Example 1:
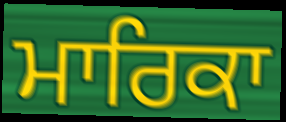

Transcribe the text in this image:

ਮਾਰਿਕਾ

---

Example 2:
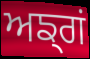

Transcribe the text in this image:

ਅਙ੍ਗਂ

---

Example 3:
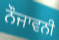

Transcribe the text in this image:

ਨੌਜਾਵਨੀ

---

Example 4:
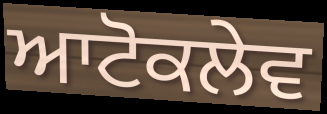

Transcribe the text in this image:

ਆਟੋਕਲੇਵ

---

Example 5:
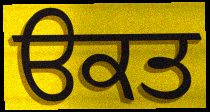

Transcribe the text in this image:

ੳਕਤ